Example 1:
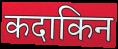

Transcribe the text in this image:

कदाकिन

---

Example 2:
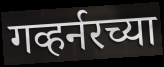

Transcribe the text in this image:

गव्हर्नरच्या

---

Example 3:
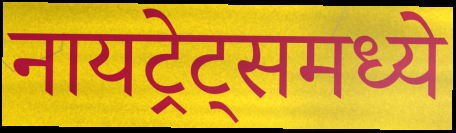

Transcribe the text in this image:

नायट्रेट्समध्ये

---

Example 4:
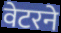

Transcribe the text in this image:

वेटरने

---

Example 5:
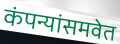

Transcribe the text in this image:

कंपन्यांसमवेत